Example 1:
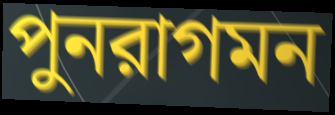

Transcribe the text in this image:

পুনরাগমন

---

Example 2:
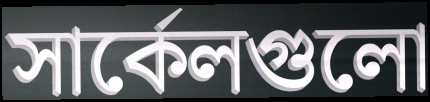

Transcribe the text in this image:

সার্কেলগুলো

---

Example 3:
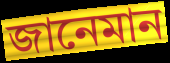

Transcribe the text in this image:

জানেমান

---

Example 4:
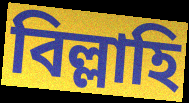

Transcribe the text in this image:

বিল্লাহি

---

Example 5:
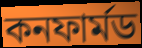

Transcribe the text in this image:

কনফার্মড